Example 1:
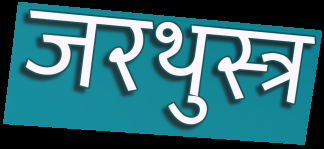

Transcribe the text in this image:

जरथुस्‍त्र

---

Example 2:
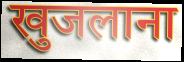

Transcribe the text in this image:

खुजलाना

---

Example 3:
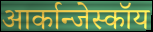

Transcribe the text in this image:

आर्कान्जेस्कॉय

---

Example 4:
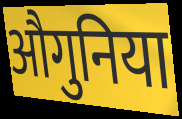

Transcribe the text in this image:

औगुनिया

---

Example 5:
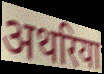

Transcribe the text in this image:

अथरिया